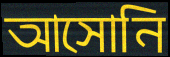
আসোনি